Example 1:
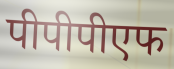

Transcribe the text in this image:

पीपीपीएफ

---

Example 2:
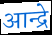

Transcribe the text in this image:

आन्द्रे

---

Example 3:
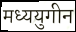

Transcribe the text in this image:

मध्ययुगीन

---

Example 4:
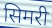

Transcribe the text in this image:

सिमरी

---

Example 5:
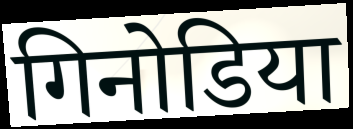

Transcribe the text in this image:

गिनोडिया